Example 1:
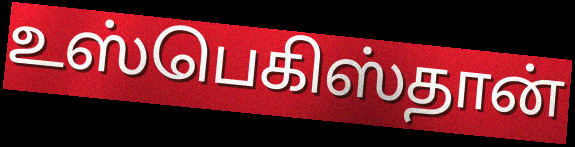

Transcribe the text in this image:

உஸ்பெகிஸ்தான்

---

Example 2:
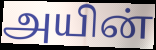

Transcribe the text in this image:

அயின்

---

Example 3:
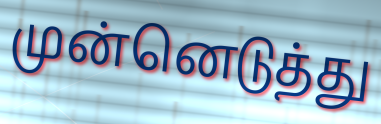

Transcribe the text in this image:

முன்னெடுத்து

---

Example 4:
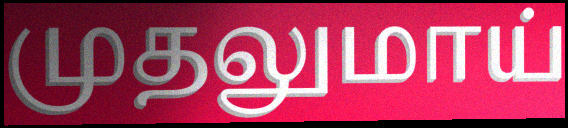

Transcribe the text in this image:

முதலுமாய்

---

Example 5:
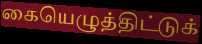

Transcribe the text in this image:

கையெழுத்திட்டுக்